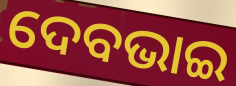
ଦେବଭାଇ